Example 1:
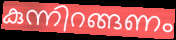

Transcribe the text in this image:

കുന്നിറങ്ങണം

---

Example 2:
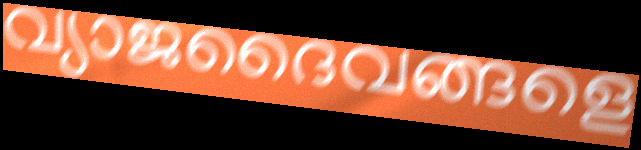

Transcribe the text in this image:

വ്യാജദൈവങ്ങളെ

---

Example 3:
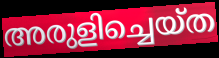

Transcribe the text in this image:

അരുളിച്ചെയ്ത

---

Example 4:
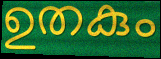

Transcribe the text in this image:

ഉതകും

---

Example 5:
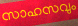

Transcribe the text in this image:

സാഹസവും